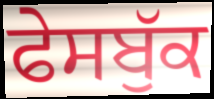
ਫੇਸਬੁੱਕ